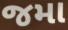
જમા